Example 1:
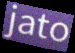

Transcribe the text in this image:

jato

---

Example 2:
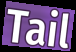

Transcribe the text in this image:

Tail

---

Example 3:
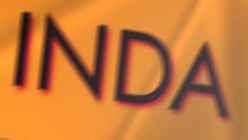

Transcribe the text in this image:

INDA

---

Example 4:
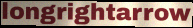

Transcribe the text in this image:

longrightarrow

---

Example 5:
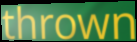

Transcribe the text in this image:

thrown